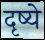
दृष्ये